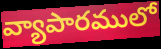
వ్యాపారములో